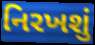
નિરખશું